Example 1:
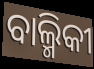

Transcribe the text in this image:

ବାଲ୍ମିକୀ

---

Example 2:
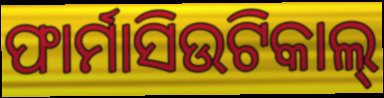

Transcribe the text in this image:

ଫାର୍ମାସିଉଟିକାଲ୍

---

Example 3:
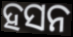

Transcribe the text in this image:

ହସନ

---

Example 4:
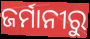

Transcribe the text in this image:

ଜର୍ମାନୀରୁ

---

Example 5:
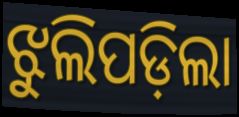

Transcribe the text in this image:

ଝୁଲିପଡ଼ିଲା